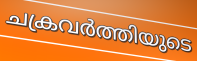
ചക്രവർത്തിയുടെ